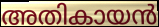
അതികായൻ